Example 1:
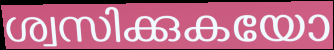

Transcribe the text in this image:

ശ്വസിക്കുകയോ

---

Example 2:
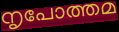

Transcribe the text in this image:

നൃപോത്തമ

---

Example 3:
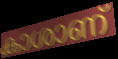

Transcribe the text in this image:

കാശാണ്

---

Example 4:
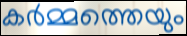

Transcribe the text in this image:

കർമ്മത്തെയും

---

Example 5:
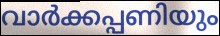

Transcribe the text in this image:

വാർക്കപ്പണിയും